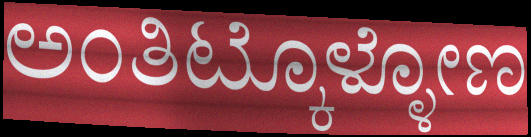
ಅಂತಿಟ್ಕೊಳ್ಳೋಣ